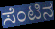
ಸೆಂಟಿನ